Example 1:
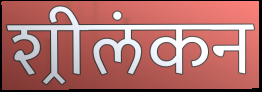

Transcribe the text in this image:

श्रीलंकन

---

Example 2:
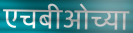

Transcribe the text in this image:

एचबीओच्या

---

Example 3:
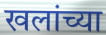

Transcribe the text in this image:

खलांच्या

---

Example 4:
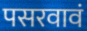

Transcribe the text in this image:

पसरवावं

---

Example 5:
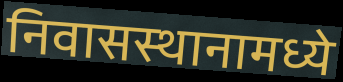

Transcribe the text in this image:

निवासस्थानामध्ये